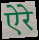
ऐरे